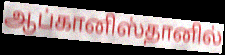
ஆப்கானிஸ்தானில்